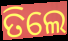
ତିଲେ